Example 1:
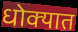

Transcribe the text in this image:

धोक्‍यात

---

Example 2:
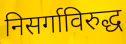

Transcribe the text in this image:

निसर्गाविरुद्ध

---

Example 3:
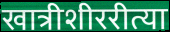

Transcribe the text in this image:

खात्रीशीररीत्या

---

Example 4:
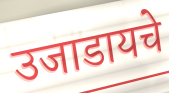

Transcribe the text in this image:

उजाडायचे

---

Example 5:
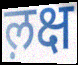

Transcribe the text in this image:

ल़क्ष